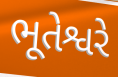
ભૂતેશ્વરે